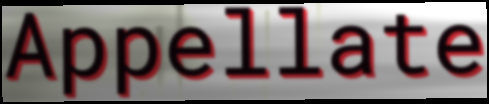
Appellate